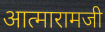
आत्मारामजी